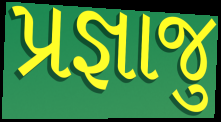
પ્રજ્ઞાજુ